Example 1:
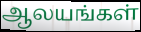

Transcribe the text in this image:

ஆலயங்கள்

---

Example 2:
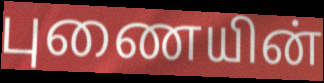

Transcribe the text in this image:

புணையின்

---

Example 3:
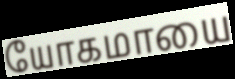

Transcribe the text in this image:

யோகமாயை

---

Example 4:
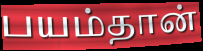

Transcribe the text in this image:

பயம்தான்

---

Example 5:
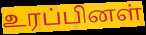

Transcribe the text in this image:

உரப்பினள்